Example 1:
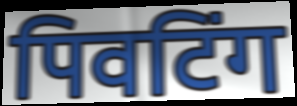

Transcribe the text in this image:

पिवटिंग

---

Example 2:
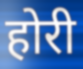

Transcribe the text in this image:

होरी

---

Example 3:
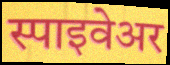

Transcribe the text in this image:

स्पाइवेअर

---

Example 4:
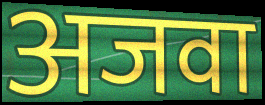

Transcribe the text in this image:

अजवा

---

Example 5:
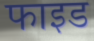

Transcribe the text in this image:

फाइड